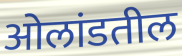
ओलांडतील